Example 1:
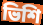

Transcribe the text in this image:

ভিশি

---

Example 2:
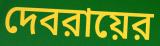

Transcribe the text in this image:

দেবরায়ের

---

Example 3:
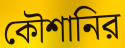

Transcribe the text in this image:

কৌশানির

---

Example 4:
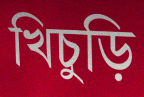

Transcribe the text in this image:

খিচুড়ি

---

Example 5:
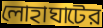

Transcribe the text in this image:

লোহাঘাটের